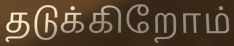
தடுக்கிறோம்